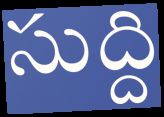
సుద్ది